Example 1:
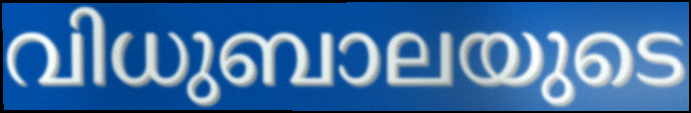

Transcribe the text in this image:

വിധുബാലയുടെ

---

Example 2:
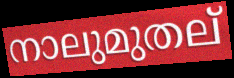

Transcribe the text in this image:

നാലുമുതല്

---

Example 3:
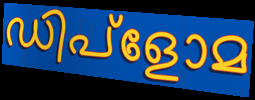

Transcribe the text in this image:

ഡിപ്ളോമ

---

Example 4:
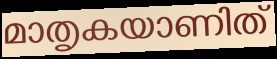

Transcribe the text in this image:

മാതൃകയാണിത്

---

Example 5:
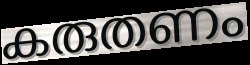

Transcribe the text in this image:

കരുതണം